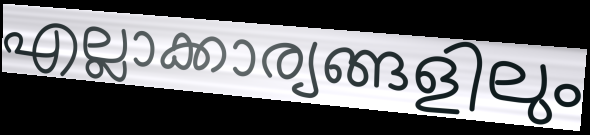
എല്ലാക്കാര്യങ്ങളിലും